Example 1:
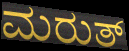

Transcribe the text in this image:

ಮರುತ್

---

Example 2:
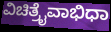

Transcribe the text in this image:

ವಿಚಿತ್ರೈವಾಭಿಧಾ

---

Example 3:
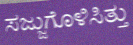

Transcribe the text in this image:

ಸಜ್ಜುಗೊಳಿಸಿತ್ತು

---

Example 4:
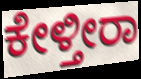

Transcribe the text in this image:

ಕೇಳ್ತೀರಾ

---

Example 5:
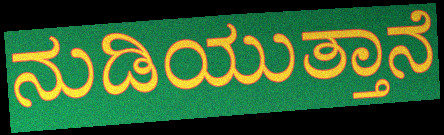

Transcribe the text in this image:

ನುಡಿಯುತ್ತಾನೆ